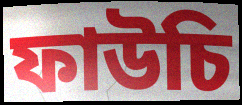
ফাউচি